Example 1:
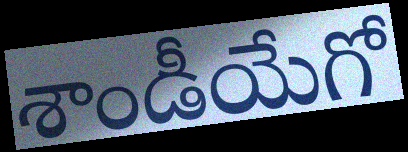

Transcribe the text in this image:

శాండీయేగో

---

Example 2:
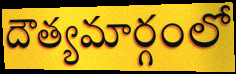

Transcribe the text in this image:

దౌత్యమార్గంలో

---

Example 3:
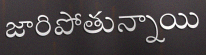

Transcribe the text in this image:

జారిపోతున్నాయి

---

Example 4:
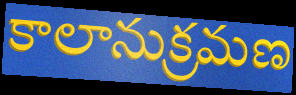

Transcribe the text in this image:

కాలానుక్రమణ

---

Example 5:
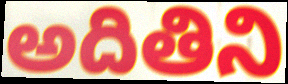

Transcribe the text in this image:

అదితిని